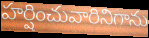
హర్షించువారినిగాను